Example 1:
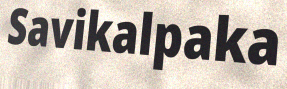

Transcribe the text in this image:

Savikalpaka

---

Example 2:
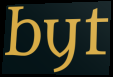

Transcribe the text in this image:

byt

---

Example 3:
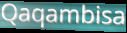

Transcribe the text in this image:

Qaqambisa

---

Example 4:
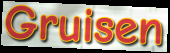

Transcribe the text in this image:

Gruisen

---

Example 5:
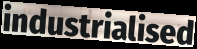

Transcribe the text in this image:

industrialised